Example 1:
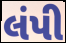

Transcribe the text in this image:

લંપી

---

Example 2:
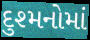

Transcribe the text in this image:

દુશ્મનોમાં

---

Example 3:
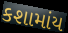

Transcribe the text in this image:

કશામાંય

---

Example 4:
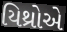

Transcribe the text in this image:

યિથ્રોએ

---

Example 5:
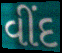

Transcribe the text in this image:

વીંદ